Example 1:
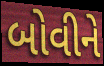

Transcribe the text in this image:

બોવીને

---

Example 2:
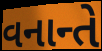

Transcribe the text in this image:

વનાન્તે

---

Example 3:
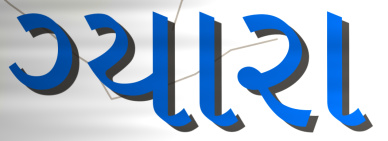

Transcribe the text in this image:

ગ્યારા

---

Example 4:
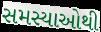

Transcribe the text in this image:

સમસ્યાઓથી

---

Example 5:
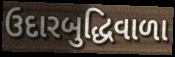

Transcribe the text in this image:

ઉદારબુદ્ધિવાળા